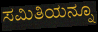
ಸಮಿತಿಯನ್ನೂ